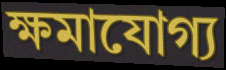
ক্ষমাযোগ্য